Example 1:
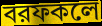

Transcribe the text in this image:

বরফকলে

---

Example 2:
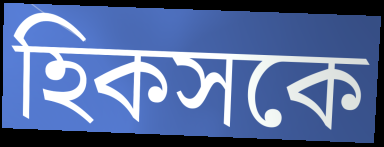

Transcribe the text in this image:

হিকসকে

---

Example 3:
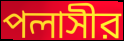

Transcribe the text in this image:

পলাসীর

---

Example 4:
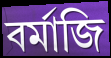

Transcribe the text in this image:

বর্মাজি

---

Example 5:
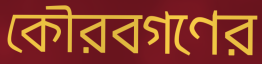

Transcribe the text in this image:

কৌরবগণের